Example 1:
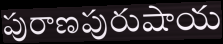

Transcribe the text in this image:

పురాణపురుషాయ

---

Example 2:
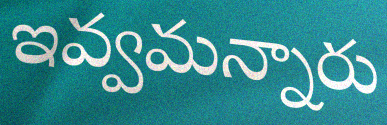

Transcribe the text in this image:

ఇవ్వమన్నారు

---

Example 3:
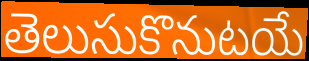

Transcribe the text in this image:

తెలుసుకొనుటయే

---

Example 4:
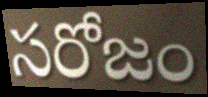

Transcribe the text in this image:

సరోజం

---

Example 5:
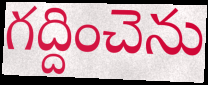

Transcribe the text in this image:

గద్దించెను